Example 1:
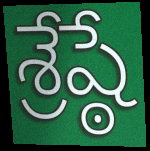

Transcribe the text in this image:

శ్రేష్ఠే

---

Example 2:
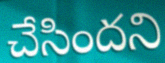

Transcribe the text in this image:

చేసిందని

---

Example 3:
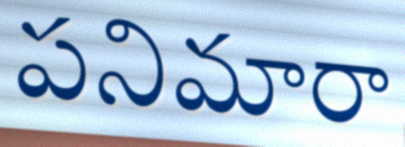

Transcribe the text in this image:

పనిమారా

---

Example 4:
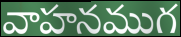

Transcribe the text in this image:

వాహనముగ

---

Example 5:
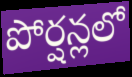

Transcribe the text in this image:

పోర్షన్లలో